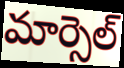
మార్సెల్